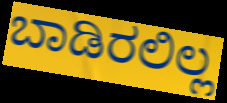
ಬಾಡಿರಲಿಲ್ಲ